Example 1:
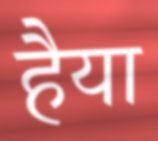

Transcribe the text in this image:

हैया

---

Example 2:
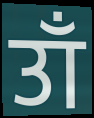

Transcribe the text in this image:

उाँ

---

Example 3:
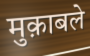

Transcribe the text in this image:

मुक़ाबले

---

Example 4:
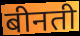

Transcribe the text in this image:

बीनती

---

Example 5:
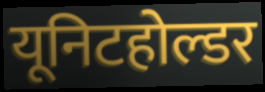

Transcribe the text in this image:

यूनिटहोल्डर